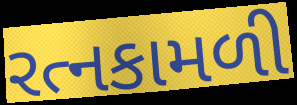
રત્નકામળી